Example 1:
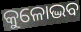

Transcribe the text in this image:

କୁଳୋଦ୍ଭବ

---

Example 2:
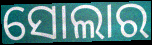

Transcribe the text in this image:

ସୋଲାର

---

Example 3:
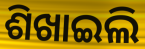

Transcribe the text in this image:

ଶିଖାଇଲି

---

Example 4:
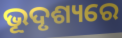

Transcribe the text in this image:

ଭୂଦୃଶ୍ୟରେ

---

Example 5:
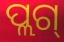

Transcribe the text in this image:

ପ୍ଲଗ୍